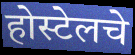
होस्टेलचे